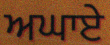
ਅਘਾਏ